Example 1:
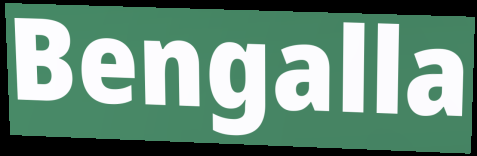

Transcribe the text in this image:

Bengalla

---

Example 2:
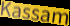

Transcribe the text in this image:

Kassam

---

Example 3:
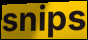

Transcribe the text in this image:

snips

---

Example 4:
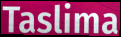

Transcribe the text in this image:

Taslima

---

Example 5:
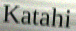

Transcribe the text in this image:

Katahi